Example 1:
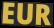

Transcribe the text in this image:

EUR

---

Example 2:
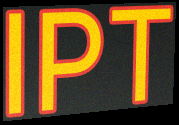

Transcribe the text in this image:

IPT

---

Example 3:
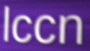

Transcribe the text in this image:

lccn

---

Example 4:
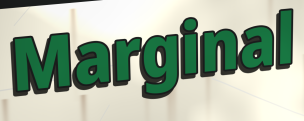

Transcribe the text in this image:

Marginal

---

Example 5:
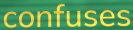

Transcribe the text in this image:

confuses